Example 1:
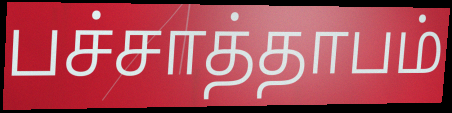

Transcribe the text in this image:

பச்சாத்தாபம்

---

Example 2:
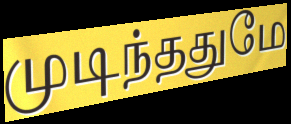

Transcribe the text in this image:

முடிந்ததுமே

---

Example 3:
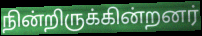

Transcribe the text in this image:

நின்றிருக்கின்றனர்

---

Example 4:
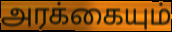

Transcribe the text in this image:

அரக்கையும்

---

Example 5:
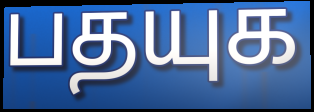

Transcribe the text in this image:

பதயுக